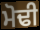
ਮੋਢੀ